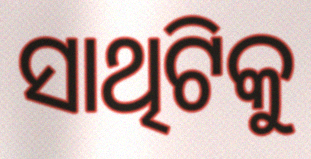
ସାଥିଟିକୁ